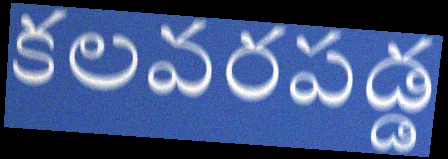
కలవరపడ్డ